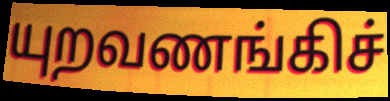
யுறவணங்கிச்